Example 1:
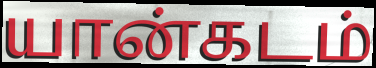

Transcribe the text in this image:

யான்கடம்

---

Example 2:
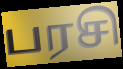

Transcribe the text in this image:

பரசி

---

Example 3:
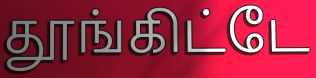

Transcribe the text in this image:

தூங்கிட்டே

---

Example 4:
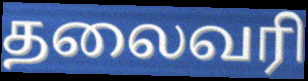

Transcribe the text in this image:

தலைவரி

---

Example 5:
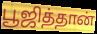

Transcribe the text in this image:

பூஜித்தான்